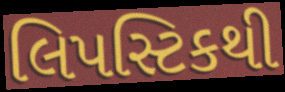
લિપસ્ટિકથી